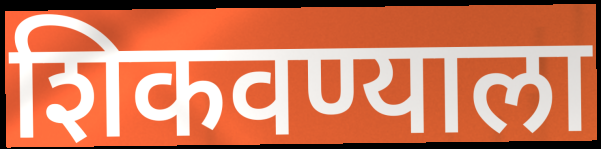
शिकवण्याला